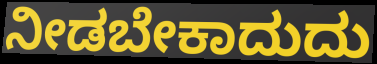
ನೀಡಬೇಕಾದುದು